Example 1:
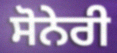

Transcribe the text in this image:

ਸੋਨੇਰੀ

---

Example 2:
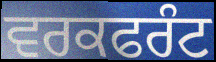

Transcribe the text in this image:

ਵਰਕਫਰੰਟ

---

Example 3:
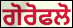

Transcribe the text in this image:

ਗੋਰੋਫਲੋ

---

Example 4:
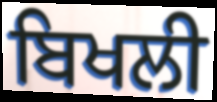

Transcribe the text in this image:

ਬਿਖਲੀ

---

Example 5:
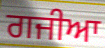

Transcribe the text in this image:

ਗਜੀਆ